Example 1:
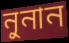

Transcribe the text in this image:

নুনান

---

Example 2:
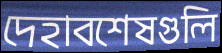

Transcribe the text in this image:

দেহাবশেষগুলি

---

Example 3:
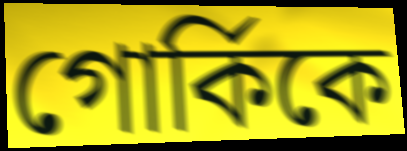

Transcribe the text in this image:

গোর্কিকে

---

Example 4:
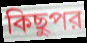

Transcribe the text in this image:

কিছুপর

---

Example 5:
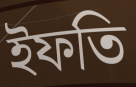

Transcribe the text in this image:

ইফতি